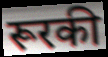
रूरकी